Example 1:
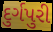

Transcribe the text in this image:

દુર્ગપુરી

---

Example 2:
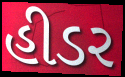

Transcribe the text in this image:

હીડર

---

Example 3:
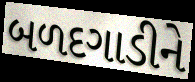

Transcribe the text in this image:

બળદગાડીને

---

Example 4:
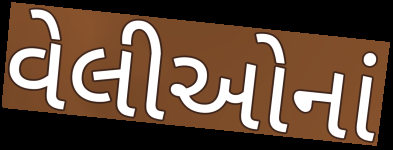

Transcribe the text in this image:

વેલીઓનાં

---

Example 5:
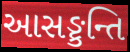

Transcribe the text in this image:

આસઙ્કન્તિ